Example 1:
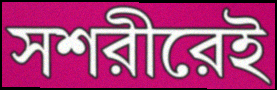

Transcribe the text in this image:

সশরীরেই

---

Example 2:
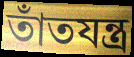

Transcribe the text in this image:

তাঁতযন্ত্র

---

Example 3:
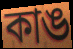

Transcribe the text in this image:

কাঙ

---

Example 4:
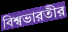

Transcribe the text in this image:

বিশ্বভারতীর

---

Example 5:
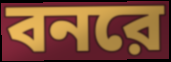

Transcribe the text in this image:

বনরে